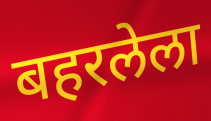
बहरलेला